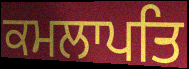
ਕਮਲਾਪਤਿ